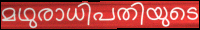
മഥുരാധിപതിയുടെ